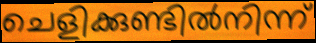
ചെളിക്കുണ്ടിൽനിന്ന്